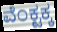
ವೆಂಕ್ಟಕ್ಕ